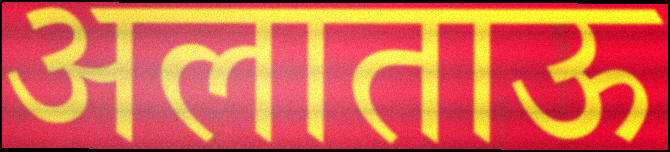
अलाताऊ